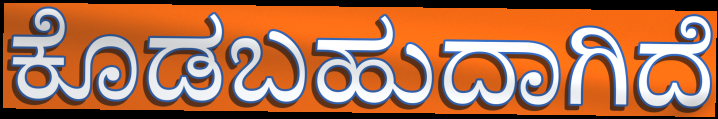
ಕೊಡಬಹುದಾಗಿದೆ